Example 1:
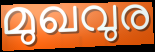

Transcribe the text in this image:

മുഖവുര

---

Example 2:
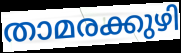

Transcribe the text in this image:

താമരക്കുഴി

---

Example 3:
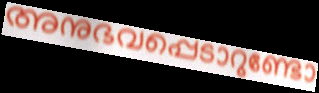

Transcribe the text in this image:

അനുഭവപ്പെടാറുണ്ടോ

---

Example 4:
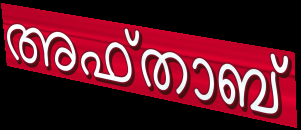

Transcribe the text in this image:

അഫ്താബ്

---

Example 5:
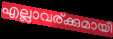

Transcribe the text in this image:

എല്ലാവര്ക്കുമായി